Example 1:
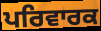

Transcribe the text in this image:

ਪਰਿਵਾਰਕ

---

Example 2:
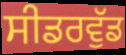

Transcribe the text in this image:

ਸੀਡਰਵੁੱਡ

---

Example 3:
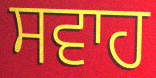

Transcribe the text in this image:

ਸਵਾਹ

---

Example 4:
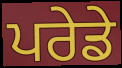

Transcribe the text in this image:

ਪਰੇਡੇ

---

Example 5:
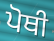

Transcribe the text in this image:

ਪੋਥੀ